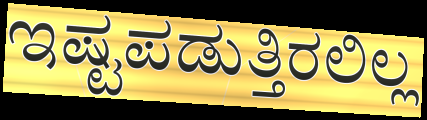
ಇಷ್ಟಪಡುತ್ತಿರಲಿಲ್ಲ